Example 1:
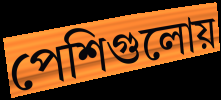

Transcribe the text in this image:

পেশিগুলোয়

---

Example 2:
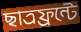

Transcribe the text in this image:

ছাত্রফ্রন্টে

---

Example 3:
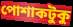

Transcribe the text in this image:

পোশাকটুকু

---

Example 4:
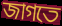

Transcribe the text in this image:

জাগতে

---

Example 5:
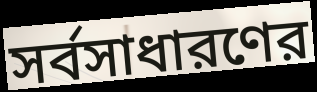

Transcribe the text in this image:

সর্বসাধারণের